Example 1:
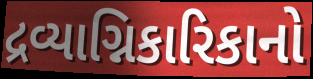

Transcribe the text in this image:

દ્રવ્યાગ્નિકારિકાનો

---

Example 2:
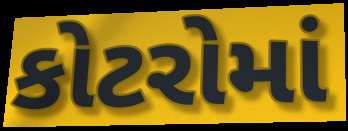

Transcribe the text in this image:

કોટરોમાં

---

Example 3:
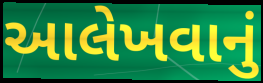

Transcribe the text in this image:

આલેખવાનું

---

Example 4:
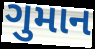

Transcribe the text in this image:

ગુમાન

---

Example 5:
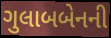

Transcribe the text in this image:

ગુલાબબેનની